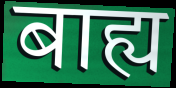
बाह्य